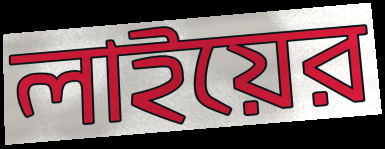
লাইয়ের